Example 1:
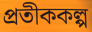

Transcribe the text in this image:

প্রতীককল্প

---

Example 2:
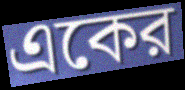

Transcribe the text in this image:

একের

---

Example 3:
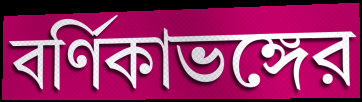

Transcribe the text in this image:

বর্ণিকাভঙ্গের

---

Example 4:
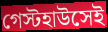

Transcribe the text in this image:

গেস্টহাউসেই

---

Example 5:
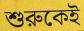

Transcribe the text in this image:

শুরুকেই